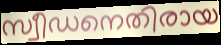
സ്വീഡനെതിരായ